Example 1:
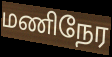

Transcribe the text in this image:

மணிநேர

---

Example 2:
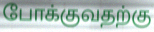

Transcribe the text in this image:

போக்குவதற்கு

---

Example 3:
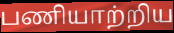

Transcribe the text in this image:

பணியாற்றிய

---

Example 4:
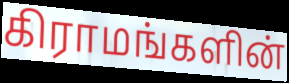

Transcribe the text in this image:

கிராமங்களின்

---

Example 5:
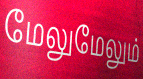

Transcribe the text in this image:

மேலுமேலும்